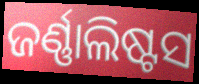
ଜର୍ଣ୍ଣାଲିଷ୍ଟସ